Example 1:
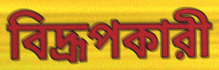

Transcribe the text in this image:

বিদ্রূপকারী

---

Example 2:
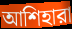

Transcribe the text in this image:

আশিহারা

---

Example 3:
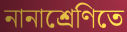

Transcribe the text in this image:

নানাশ্রেণিতে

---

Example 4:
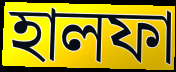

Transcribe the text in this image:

হালফা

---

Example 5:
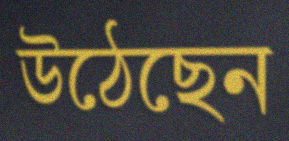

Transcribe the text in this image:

উঠেছেন